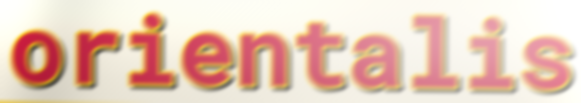
orientalis